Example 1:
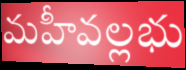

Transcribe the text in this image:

మహీవల్లభు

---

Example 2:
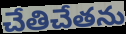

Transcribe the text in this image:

చేతిచేతను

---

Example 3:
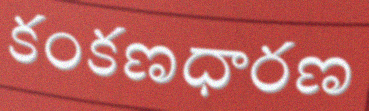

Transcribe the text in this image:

కంకణధారణ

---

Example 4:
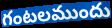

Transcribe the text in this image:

గంటలముందు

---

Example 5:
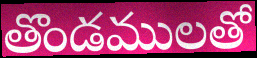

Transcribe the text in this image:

తొండములతో